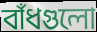
বাঁধগুলো